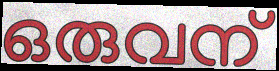
ഒരുവന്